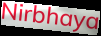
Nirbhaya